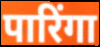
पारिंगा